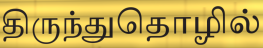
திருந்துதொழில்